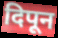
दिपून